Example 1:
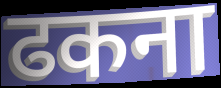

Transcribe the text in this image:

ढकना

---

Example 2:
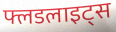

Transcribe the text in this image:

फ्लडलाइट्स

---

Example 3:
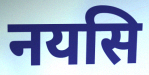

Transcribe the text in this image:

नयसि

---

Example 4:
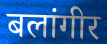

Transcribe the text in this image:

बलांगीर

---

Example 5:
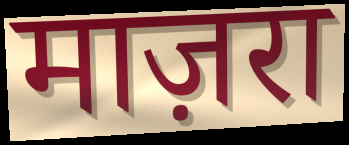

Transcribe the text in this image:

माज़रा